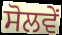
ਸੋਲਵੇਂ